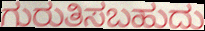
ಗುರುತಿಸಬಹುದು